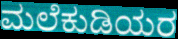
ಮಲೆಕುಡಿಯರ